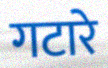
गटारे